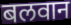
बलवान